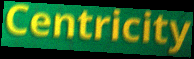
Centricity